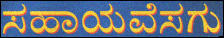
ಸಹಾಯವೆಸಗು